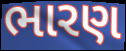
ભારણ